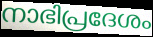
നാഭിപ്രദേശം